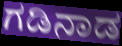
ಗಡಿನಾಡ